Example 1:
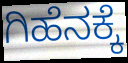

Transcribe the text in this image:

ಗಿಹೆನಕ್ಕೆ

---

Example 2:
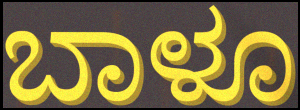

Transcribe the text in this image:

ಬಾಳೂ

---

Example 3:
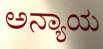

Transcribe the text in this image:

ಅನ್ಯಾಯ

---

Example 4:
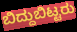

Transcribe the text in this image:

ಬಿದ್ದುಬಿಟ್ಟರು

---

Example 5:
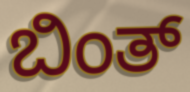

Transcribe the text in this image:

ಬಿಂತ್